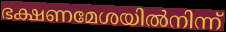
ഭക്ഷണമേശയിൽനിന്ന്